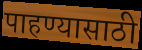
पाहण्यासाठी